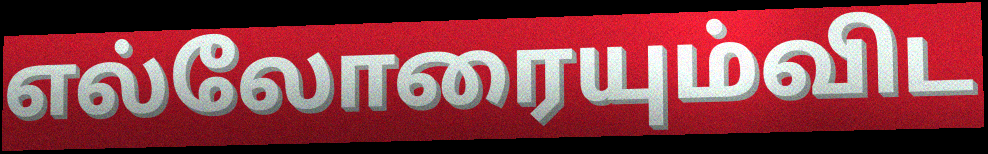
எல்லோரையும்விட